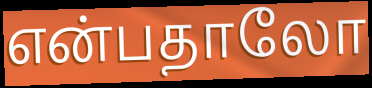
என்பதாலோ